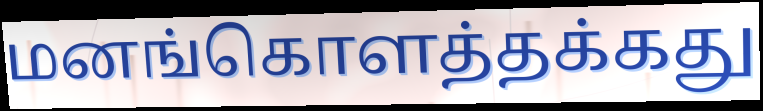
மனங்கொளத்தக்கது